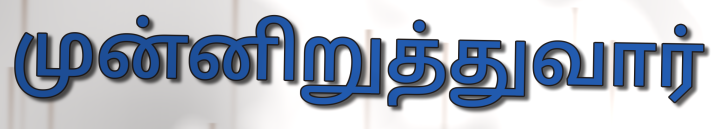
முன்னிறுத்துவார்